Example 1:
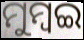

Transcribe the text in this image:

ମୁମ୍ବଇ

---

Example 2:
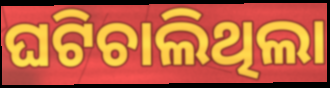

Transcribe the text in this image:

ଘଟିଚାଲିଥିଲା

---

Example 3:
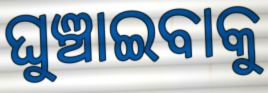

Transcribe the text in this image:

ଘୁଞ୍ଚାଇବାକୁ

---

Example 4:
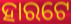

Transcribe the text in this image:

ହାରଟେ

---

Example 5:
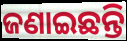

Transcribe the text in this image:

ଜଣାଇଛନ୍ତି